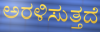
ಅರಳಿಸುತ್ತದೆ